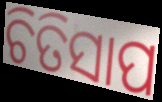
ଚିତିସାପ